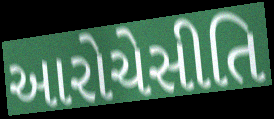
આરોચેસીતિ